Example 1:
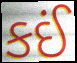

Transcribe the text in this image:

કઈં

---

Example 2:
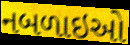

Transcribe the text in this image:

નબળાઇઓ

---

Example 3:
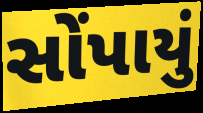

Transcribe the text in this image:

સોંપાયું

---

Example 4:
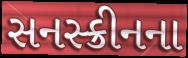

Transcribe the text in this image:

સનસ્ક્રીનના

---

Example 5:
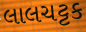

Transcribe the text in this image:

લાલચટ્ટક